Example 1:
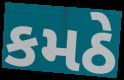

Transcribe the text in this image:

કમઠે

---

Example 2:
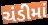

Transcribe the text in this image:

ચંડીમાં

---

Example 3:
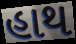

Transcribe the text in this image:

હાથ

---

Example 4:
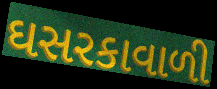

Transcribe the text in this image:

ઘસરકાવાળી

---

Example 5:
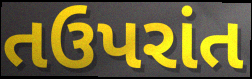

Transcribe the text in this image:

તઉપરાંત